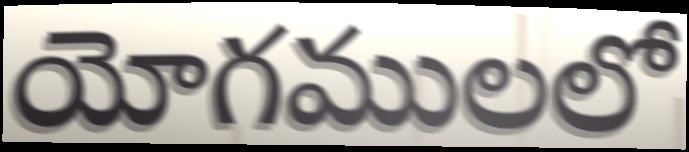
యోగములలో